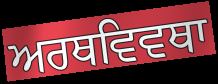
ਅਰਥਵਿਵਥਾ